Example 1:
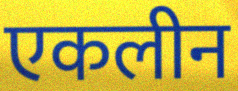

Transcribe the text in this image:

एकलीन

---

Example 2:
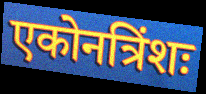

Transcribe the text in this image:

एकोनत्रिंशः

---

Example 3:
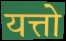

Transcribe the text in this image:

यत्तो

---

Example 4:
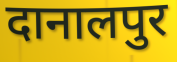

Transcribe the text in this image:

दानालपुर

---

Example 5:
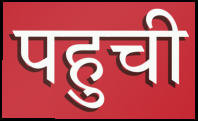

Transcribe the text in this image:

पहुची